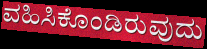
ವಹಿಸಿಕೊಂಡಿರುವುದು